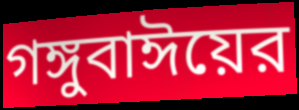
গঙ্গুবাঈয়ের